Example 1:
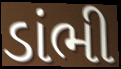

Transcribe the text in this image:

ડાંભી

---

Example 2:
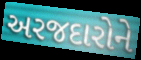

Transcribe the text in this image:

અરજદારોને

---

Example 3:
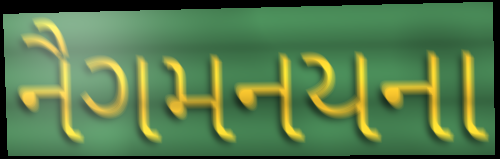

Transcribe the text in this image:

નૈગમનયના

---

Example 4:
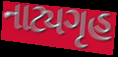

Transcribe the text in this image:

નાટ્યગૃહ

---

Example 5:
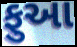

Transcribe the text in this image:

ફુઆ